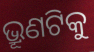
ଭ୍ରୂଣଟିକୁ